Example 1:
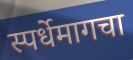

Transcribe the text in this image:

स्पर्धेमागचा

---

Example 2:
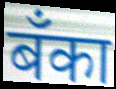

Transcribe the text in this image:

बॅंका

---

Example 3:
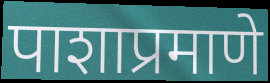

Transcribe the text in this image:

पाशाप्रमाणे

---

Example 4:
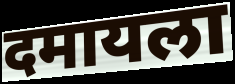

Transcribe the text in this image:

दमायला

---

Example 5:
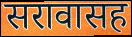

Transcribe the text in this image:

सरावासह